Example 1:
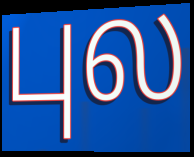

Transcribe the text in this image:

புல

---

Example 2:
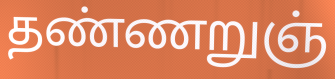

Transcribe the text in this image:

தண்ணறுஞ்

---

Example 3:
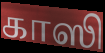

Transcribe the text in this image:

காஸி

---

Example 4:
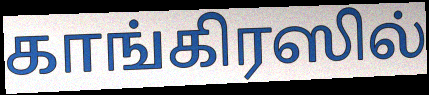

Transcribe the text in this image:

காங்கிரஸில்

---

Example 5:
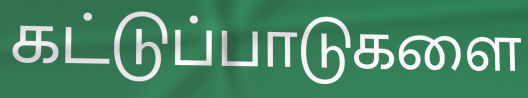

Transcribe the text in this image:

கட்டுப்பாடுகளை